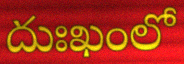
దుఃఖంలో